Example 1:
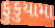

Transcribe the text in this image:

ફુકુયામા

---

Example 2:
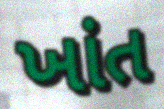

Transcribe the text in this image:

ખાંત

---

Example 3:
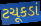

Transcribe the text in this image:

ટચૂકડાં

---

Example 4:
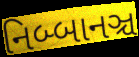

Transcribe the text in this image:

નિબ્બાનઞ્ચ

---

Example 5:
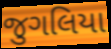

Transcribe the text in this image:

જુગલિયા